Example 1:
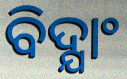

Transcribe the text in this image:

ବିଦ୍ଯାଂ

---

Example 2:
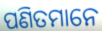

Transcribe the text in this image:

ପଣିତମାନେ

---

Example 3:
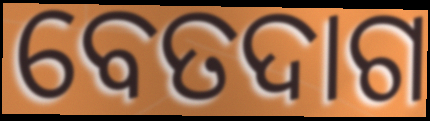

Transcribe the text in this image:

ବେତଦାଗ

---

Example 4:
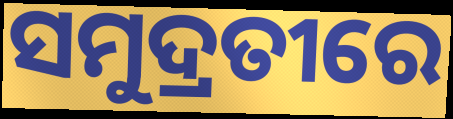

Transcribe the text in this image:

ସମୁଦ୍ରତୀରେ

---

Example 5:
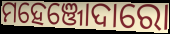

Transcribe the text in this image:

ମହେଞ୍ଜୋଦାରୋ